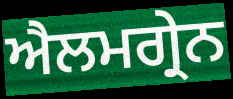
ਐਲਮਗ੍ਰੇਨ